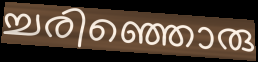
ച്ചരിഞ്ഞൊരു